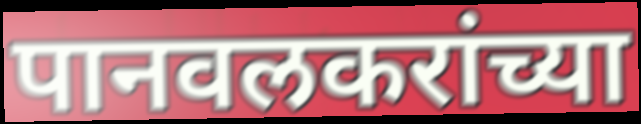
पानवलकरांच्या